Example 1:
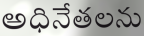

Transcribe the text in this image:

అధినేతలను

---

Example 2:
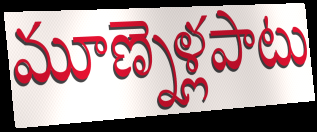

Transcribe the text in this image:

మూణ్నెళ్లపాటు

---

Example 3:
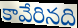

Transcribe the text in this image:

కావేరినది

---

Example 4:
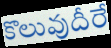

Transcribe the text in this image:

కొలువుదీరే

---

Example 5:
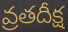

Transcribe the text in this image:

వ్రతదీక్ష